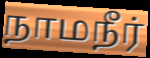
நாமநீர்